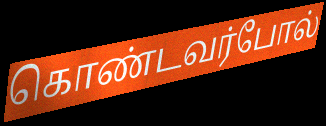
கொண்டவர்போல்